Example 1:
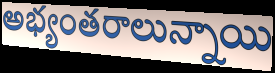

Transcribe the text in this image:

అభ్యంతరాలున్నాయి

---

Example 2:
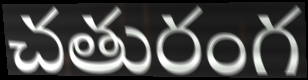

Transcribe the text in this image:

చతురంగ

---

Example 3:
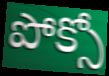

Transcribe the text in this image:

పోక్సో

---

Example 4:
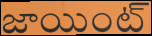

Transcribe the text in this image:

జాయింట్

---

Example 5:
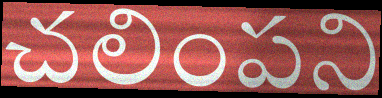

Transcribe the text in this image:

చలింపని